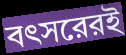
বৎসরেরই